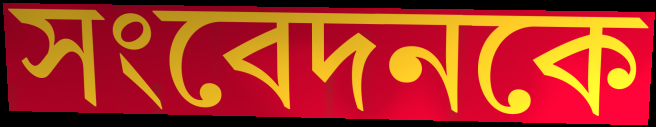
সংবেদনকে